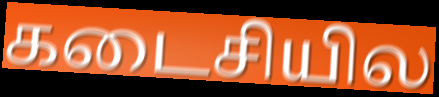
கடைசியில